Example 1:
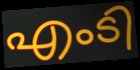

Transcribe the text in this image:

എംടി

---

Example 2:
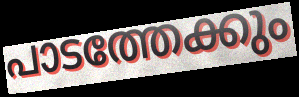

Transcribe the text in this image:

പാടത്തേക്കും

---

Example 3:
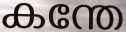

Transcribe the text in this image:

കന്തേ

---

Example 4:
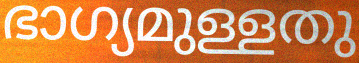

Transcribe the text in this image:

ഭാഗ്യമുള്ളതു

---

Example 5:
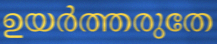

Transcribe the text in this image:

ഉയർത്തരുതേ